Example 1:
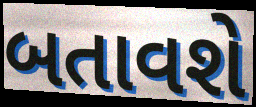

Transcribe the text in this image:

બતાવશે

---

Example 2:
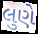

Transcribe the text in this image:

લુણે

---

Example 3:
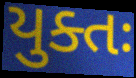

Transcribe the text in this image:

યુક્તઃ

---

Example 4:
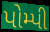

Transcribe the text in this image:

પોમ્પી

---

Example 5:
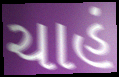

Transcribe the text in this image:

ચાહં